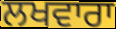
ਲਖਵਾਰਾ